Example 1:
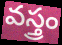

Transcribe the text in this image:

వస్త్రం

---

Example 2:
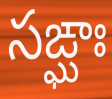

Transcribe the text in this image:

సఙ్ఘాః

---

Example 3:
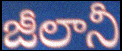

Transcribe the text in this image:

జీలానీ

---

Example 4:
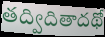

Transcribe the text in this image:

తద్విదితాదథో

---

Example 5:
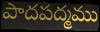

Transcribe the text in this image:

పాదపద్మము